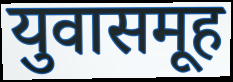
युवासमूह